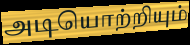
அடியொற்றியும்